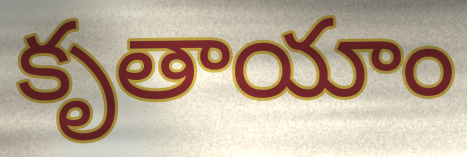
కృతాయాం